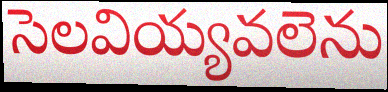
సెలవియ్యవలెను